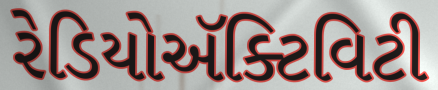
રેડિયોઍક્ટિવિટી